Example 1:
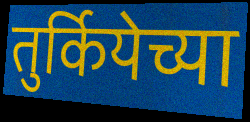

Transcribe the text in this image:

तुर्कियेच्या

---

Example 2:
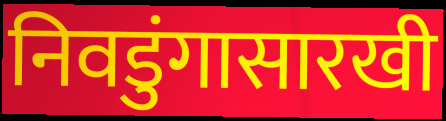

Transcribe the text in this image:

निवडुंगासारखी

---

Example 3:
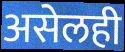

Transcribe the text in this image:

असेलही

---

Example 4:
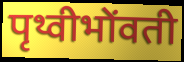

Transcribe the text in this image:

पृथ्वीभोंवती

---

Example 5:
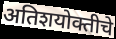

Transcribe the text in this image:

अतिशयोक्तीचे